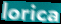
lorica